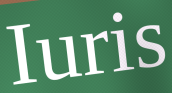
Iuris